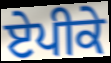
ਏਪੀਕੇ